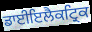
ਡਾਈਇਲੈਕਟ੍ਰਿਕ